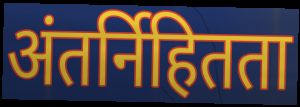
अंतर्निहितता